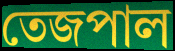
তেজপাল